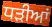
ਧੜੀਆਂ